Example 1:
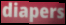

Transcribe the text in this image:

diapers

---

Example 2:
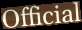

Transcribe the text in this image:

Official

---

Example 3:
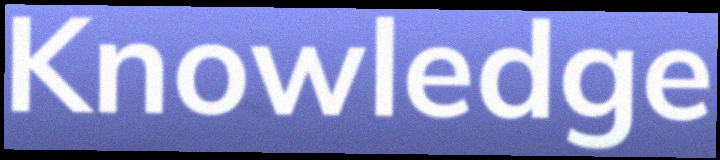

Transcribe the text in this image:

Knowledge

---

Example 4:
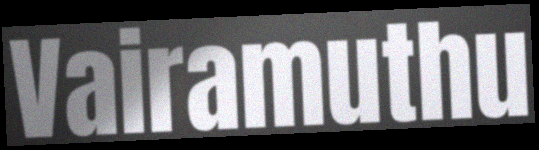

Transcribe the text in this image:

Vairamuthu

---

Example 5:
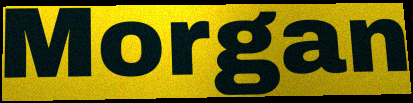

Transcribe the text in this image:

Morgan